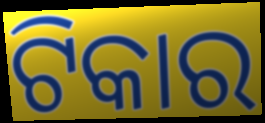
ଟିକାର